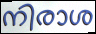
നിരാശ